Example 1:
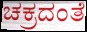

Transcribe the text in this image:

ಚಕ್ರದಂತೆ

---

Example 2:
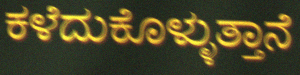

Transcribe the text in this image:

ಕಳೆದುಕೊಳ್ಳುತ್ತಾನೆ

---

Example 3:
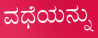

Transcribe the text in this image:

ವಧೆಯನ್ನು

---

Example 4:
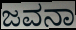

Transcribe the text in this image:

ಜವನಾ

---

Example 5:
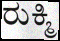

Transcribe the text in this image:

ರುಕ್ಮಿ